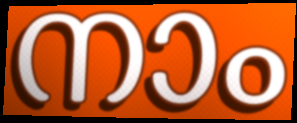
നാം